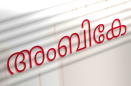
അംബികേ